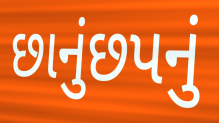
છાનુંછપનું